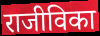
राजीविका